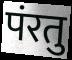
पंरतु